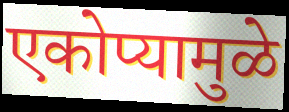
एकोप्यामुळे